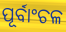
ପୂର୍ବାଂଚଳ